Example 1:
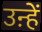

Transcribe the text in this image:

उऩ्हें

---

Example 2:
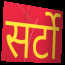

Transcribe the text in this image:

सर्टो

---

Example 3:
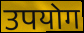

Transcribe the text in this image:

उपयोग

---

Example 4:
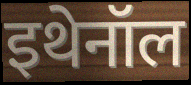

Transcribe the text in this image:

इथेनॉल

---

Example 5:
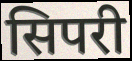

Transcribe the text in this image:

सिपरी